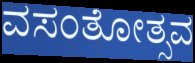
ವಸಂತೋತ್ಸವ